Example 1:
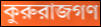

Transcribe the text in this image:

কুরুরাজগণ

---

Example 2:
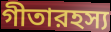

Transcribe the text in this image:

গীতারহস্য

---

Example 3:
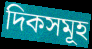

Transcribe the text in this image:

দিকসমূহ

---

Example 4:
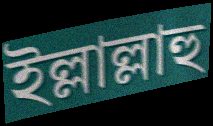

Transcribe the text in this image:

ইল্লাল্লাহু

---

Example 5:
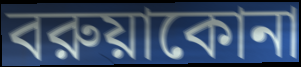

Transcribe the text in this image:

বরুয়াকোনা